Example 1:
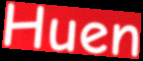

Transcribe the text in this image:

Huen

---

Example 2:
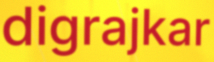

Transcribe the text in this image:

digrajkar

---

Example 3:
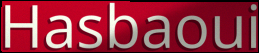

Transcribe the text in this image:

Hasbaoui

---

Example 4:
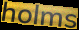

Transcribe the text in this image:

holms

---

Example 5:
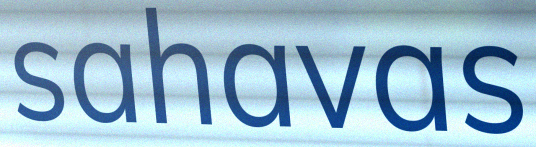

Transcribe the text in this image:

sahavas